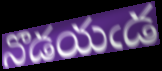
నొడయఁడ